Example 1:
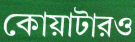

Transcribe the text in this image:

কোয়াটারও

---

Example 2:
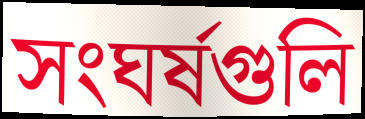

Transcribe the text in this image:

সংঘর্ষগুলি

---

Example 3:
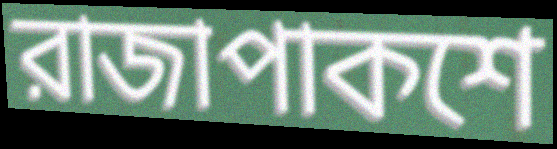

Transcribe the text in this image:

রাজাপাকশে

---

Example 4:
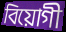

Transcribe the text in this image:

বিয়োগী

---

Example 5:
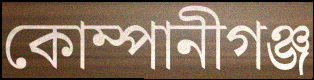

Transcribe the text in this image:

কোম্পানীগঞ্জ